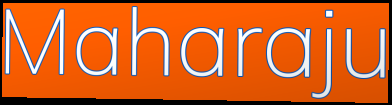
Maharaju